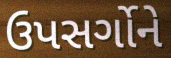
ઉપસર્ગોને